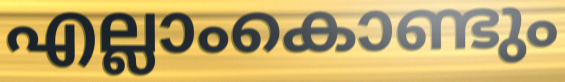
എല്ലാംകൊണ്ടും